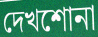
দেখশোনা